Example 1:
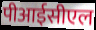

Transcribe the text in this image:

पीआईसीएल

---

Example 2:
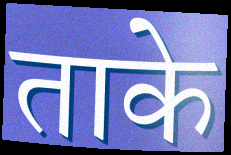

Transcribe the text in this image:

ताके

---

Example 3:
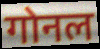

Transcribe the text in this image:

गोनल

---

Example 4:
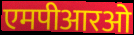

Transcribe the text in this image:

एमपीआरओ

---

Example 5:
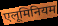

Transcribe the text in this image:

एलूमिनियम